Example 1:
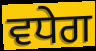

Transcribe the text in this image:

ਵਧੇਗ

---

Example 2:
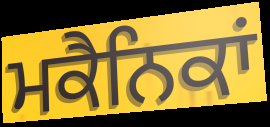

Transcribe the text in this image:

ਮਕੈਨਿਕਾਂ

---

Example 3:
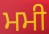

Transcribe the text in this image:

ਮਮੀ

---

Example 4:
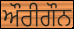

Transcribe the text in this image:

ਔਰੀਗੌਨ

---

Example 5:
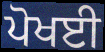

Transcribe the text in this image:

ਪੋਖਈ